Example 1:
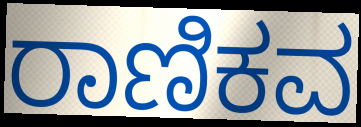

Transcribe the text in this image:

ರಾಣಿಕವ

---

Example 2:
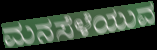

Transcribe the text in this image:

ಮನಸೆಳೆಯುವ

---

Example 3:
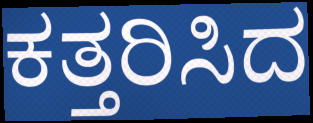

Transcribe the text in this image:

ಕತ್ತರಿಸಿದ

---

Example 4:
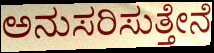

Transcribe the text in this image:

ಅನುಸರಿಸುತ್ತೇನೆ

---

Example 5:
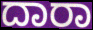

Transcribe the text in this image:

ದಾರಾ